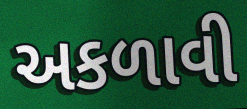
અકળાવી